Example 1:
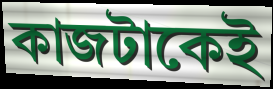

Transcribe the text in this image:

কাজটাকেই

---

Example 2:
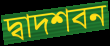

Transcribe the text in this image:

দ্বাদশবন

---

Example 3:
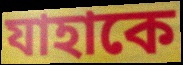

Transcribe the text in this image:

যাহাকে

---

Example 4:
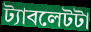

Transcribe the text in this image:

ট্যাবলেটটা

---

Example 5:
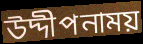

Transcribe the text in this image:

উদ্দীপনাময়